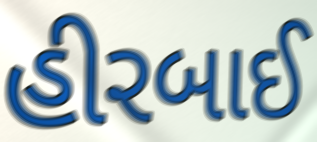
હીરબાઈ